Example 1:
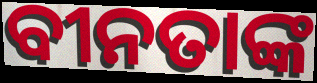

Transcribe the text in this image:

ବୀନତାଙ୍କ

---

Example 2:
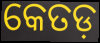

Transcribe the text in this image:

କେତଡ଼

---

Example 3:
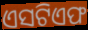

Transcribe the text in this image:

ଏସଟିଏଫ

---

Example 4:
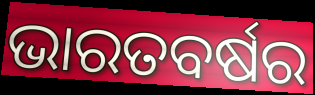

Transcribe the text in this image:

ଭାରତବର୍ଷର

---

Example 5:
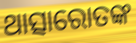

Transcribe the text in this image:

ଥାତ୍ସାରୋତଙ୍କ